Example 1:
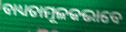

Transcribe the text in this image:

ବାଧ୍ୟତାମୂଳକଭାବେ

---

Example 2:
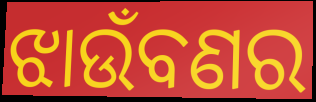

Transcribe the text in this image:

ଝାଉଁବଣର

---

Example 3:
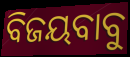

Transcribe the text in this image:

ବିଜୟବାବୁ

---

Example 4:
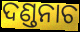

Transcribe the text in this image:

ଦଣ୍ଡନାଚ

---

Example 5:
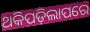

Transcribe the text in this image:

ଥକିପଡ଼ିଲାପରେ